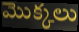
మొక్కలు